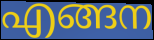
എങ്ങന